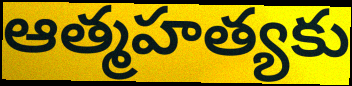
ఆత్మహత్యకు